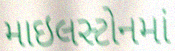
માઇલસ્ટોનમાં